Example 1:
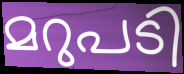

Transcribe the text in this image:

മറുപടി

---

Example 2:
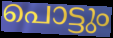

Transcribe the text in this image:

പൊട്ടും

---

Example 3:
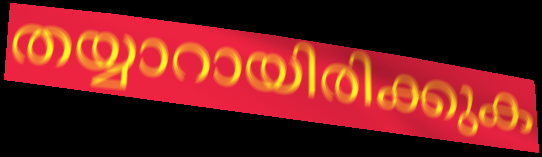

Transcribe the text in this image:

തയ്യാറായിരിക്കുക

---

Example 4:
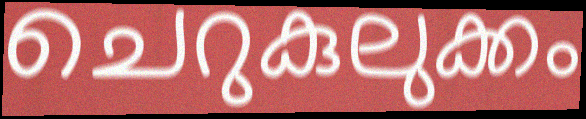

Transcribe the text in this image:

ചെറുകുലുക്കം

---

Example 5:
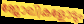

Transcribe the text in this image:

ജോലികളോടും